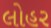
લોહર